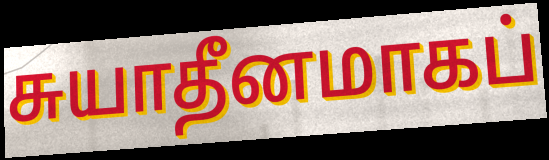
சுயாதீனமாகப்